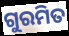
ଗୁରମିତ